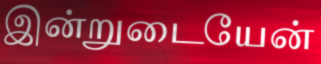
இன்றுடையேன்